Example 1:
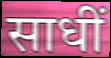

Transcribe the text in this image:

साधीं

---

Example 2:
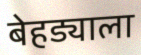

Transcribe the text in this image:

बेहड्याला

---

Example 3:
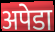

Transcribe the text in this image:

अपेडा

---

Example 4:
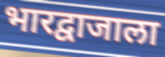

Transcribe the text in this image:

भारद्वाजाला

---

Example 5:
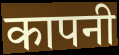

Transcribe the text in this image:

कापनी